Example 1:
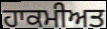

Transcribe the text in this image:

ਹਾਕਮੀਅਤ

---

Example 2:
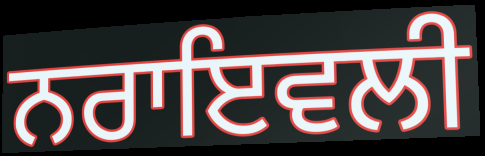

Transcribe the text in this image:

ਨਰਾਇਵਲੀ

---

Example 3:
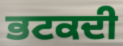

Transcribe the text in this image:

ਭਟਕਦੀ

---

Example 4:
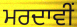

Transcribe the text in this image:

ਮਰਦਾਵੀਂ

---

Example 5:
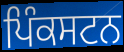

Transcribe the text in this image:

ਪਿੰਕਸਟਨ